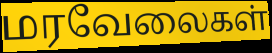
மரவேலைகள்